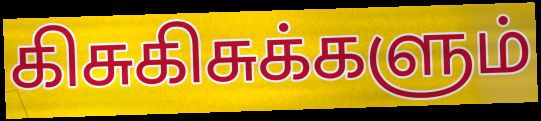
கிசுகிசுக்களும்